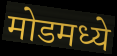
मोडमध्ये